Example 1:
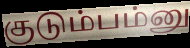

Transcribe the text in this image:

குடும்பம்னு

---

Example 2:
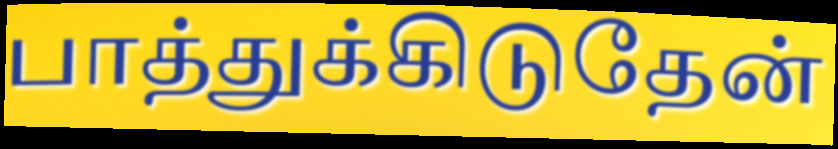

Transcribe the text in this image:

பாத்துக்கிடுதேன்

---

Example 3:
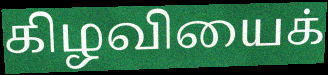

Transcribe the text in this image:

கிழவியைக்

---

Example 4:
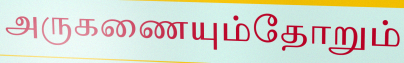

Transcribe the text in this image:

அருகணையும்தோறும்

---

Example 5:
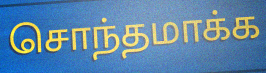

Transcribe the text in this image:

சொந்தமாக்க